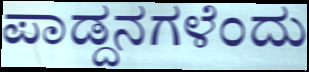
ಪಾಡ್ದನಗಳೆಂದು